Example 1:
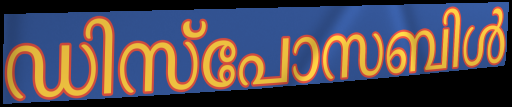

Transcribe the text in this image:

ഡിസ്പോസബിൾ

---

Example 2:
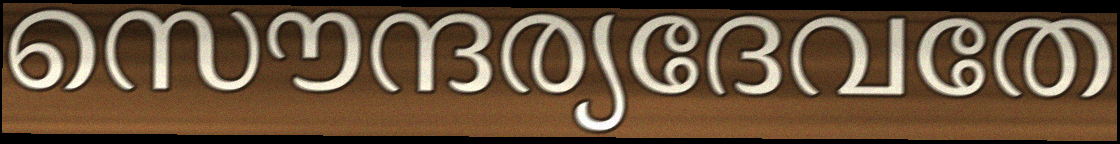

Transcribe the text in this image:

സൌന്ദര്യദേവതേ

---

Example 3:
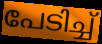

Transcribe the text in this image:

പേടിച്ച്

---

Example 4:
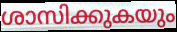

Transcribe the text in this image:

ശാസിക്കുകയും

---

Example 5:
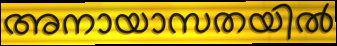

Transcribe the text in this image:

അനായാസതയിൽ